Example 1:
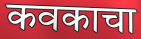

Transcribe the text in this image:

कवकाचा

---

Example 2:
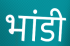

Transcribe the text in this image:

भांडी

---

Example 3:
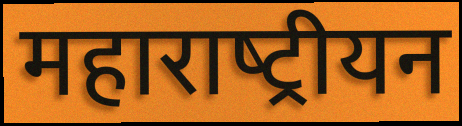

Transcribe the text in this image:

महाराष्ट्रीयन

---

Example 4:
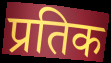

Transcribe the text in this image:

प्रतिक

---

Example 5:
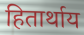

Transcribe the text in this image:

हितार्थाय